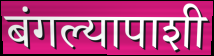
बंगल्यापाशी